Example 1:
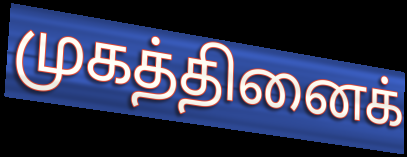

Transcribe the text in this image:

முகத்தினைக்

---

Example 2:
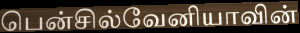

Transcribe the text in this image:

பென்சில்வேனியாவின்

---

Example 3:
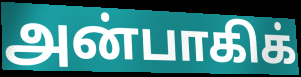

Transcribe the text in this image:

அன்பாகிக்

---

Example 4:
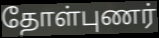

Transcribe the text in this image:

தோள்புணர்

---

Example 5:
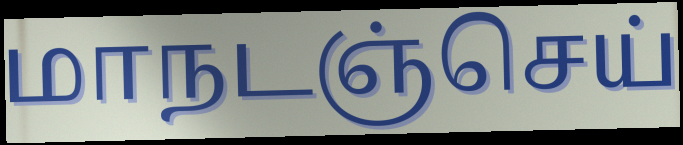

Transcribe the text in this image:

மாநடஞ்செய்